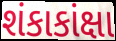
શંકાકાંક્ષા